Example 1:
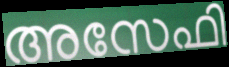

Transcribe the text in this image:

അസേഫി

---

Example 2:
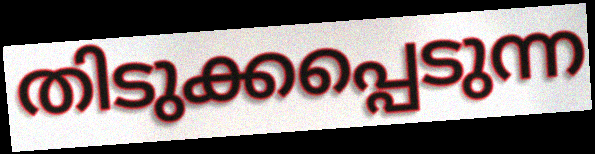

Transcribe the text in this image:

തിടുക്കപ്പെടുന്ന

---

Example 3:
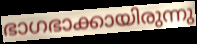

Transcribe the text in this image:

ഭാഗഭാക്കായിരുന്നു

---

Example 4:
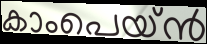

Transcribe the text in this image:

കാംപെയ്ൻ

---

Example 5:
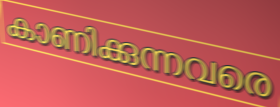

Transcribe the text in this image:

കാണിക്കുന്നവരെ